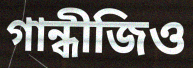
গান্ধীজিও